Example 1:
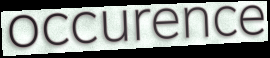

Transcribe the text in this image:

occurence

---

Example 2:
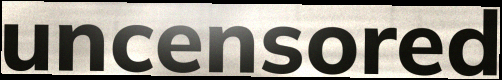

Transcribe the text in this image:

uncensored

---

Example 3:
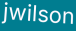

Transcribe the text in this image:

jwilson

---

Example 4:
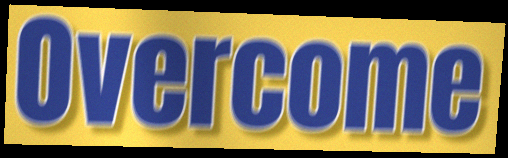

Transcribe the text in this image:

Overcome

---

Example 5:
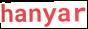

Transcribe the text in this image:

hanyar